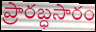
ప్రారబ్ధసారం